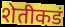
शेतीकडं